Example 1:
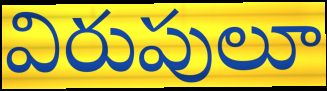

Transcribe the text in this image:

విరుపులూ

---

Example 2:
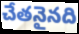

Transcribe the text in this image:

చేతనైనది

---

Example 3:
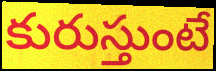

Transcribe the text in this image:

కురుస్తుంటే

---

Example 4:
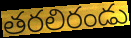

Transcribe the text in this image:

తరలిరండు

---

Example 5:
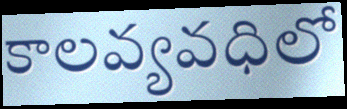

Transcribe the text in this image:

కాలవ్యవధిలో